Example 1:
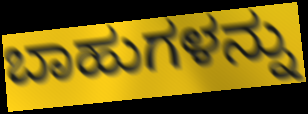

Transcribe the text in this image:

ಬಾಹುಗಳನ್ನು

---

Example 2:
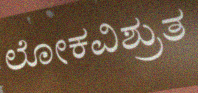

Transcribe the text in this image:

ಲೋಕವಿಶ್ರುತ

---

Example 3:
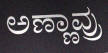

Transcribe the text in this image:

ಅಣ್ಣಾವ್ರು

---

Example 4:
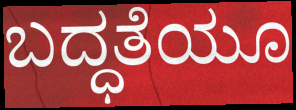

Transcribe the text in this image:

ಬದ್ಧತೆಯೂ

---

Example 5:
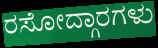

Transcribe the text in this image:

ರಸೋದ್ಗಾರಗಳು